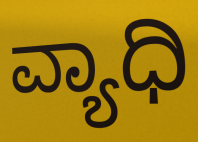
ವ್ಯಾಧಿ